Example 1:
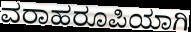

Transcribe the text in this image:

ವರಾಹರೂಪಿಯಾಗಿ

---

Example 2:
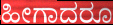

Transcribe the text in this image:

ಹೀಗಾದರೂ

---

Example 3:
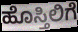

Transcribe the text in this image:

ಹೊಸ್ತಿಲಿಗೆ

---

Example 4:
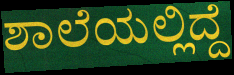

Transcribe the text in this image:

ಶಾಲೆಯಲ್ಲಿದ್ದೆ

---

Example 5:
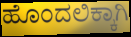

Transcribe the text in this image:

ಹೊಂದಲಿಕ್ಕಾಗಿ